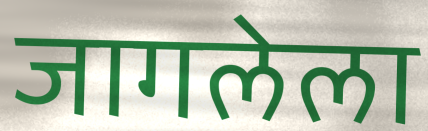
जागलेला